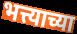
भत्त्याच्या